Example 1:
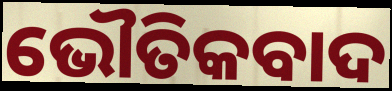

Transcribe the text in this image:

ଭୌତିକବାଦ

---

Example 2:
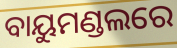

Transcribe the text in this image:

ବାୟୁମଣ୍ଡଲରେ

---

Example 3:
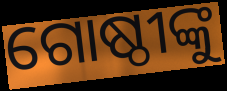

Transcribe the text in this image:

ଗୋଷ୍ଠୀଙ୍କୁ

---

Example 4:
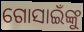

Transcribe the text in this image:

ଗୋସାଇଁଙ୍କୁ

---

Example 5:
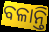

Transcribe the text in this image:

ବଳାନ୍ତି